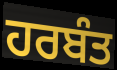
ਹਰਬੰਤ